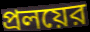
প্রলয়ের